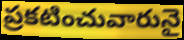
ప్రకటించువారునై